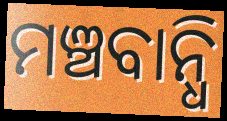
ମଞ୍ଚବାନ୍ଧି